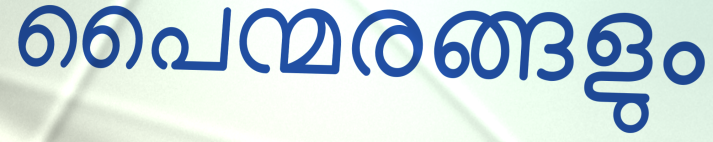
പൈന്മരങ്ങളും